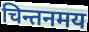
चिन्तनमय